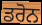
ਡਰੋਨ